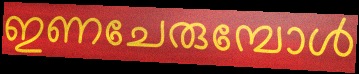
ഇണചേരുമ്പോൾ